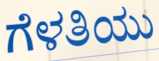
ಗೆಳತಿಯು